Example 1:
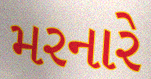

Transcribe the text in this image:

મરનારે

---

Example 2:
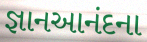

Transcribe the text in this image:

જ્ઞાનઆનંદના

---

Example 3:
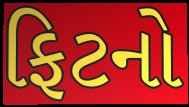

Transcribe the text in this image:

ફિટનો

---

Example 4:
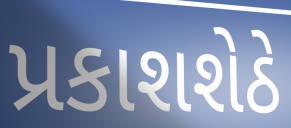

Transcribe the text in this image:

પ્રકાશશેઠે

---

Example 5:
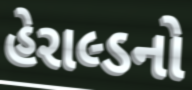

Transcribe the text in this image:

હેરાલ્ડનો